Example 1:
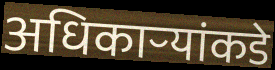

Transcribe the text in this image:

अधिकाऱ्यांकडे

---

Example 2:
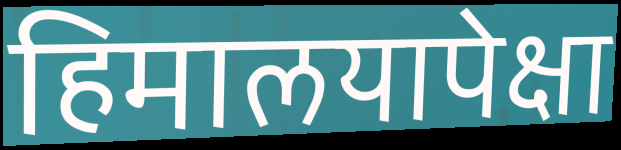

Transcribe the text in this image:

हिमालयापेक्षा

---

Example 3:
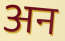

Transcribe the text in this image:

अन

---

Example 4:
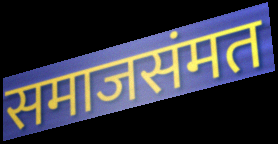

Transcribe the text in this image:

समाजसंमत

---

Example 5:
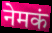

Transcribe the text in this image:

नेमकं